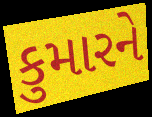
કુમારને